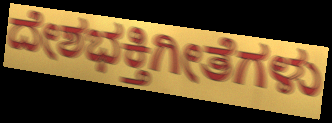
ದೇಶಭಕ್ತಿಗೀತೆಗಳು